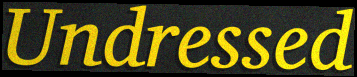
Undressed